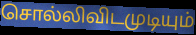
சொல்லிவிடமுடியும்